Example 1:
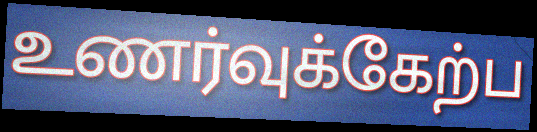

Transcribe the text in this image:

உணர்வுக்கேற்ப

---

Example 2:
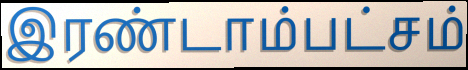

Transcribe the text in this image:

இரண்டாம்பட்சம்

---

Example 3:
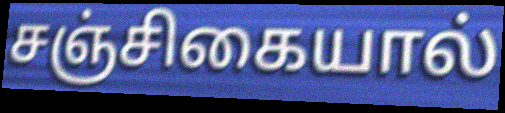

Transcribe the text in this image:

சஞ்சிகையால்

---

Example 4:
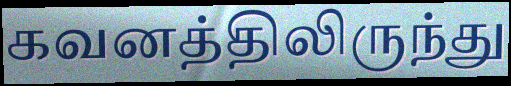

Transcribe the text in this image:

கவனத்திலிருந்து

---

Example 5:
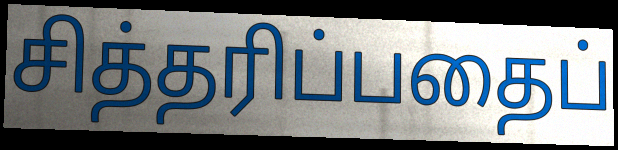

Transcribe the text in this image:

சித்தரிப்பதைப்